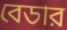
বেডার